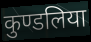
कुण्डलिया